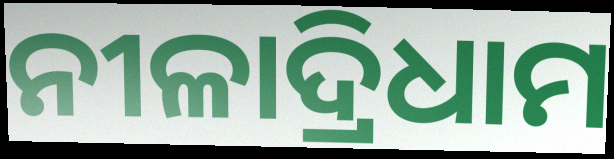
ନୀଳାଦ୍ରିଧାମ